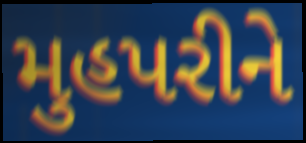
મુહપરીને